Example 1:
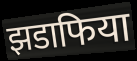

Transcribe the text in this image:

झडाफिया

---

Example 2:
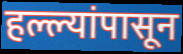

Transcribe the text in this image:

हल्ल्यांपासून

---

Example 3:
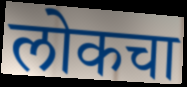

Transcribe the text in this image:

लोकचा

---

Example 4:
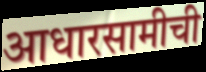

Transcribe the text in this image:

आधारसामीची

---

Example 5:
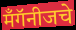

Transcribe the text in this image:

मँगॅनीजचे